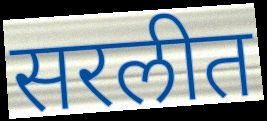
सरलीत